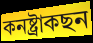
কনষ্ট্ৰাকছন